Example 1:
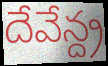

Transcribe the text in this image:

దేవేన్ద్ర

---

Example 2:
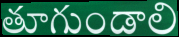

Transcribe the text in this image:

తూగుండాలి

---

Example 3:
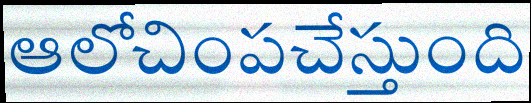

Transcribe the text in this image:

ఆలోచింపచేస్తుంది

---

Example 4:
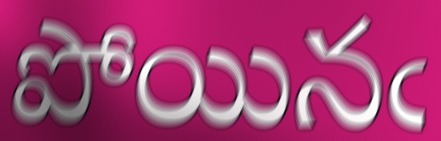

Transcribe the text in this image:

పోయినఁ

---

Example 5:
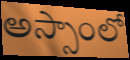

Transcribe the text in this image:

అస్సాంలో